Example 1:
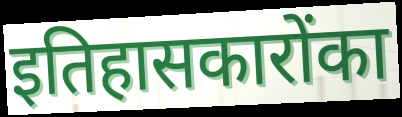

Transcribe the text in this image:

इतिहासकारोंका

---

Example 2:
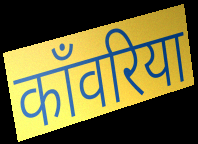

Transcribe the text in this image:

काँवरिया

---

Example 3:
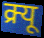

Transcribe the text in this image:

क्र्यू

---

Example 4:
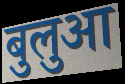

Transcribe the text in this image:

बुलुआ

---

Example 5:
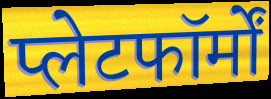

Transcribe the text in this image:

प्लेटफॉर्मों